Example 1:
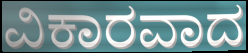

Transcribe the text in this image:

ವಿಕಾರವಾದ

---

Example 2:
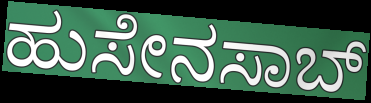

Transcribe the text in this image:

ಹುಸೇನಸಾಬ್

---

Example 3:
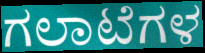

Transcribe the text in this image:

ಗಲಾಟೆಗಳ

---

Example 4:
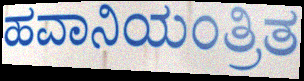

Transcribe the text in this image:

ಹವಾನಿಯಂತ್ರಿತ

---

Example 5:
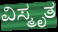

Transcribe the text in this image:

ವಿಸ್ಮೃತ